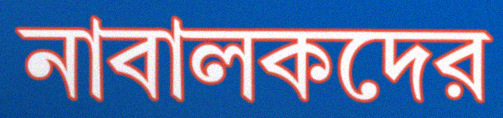
নাবালকদের